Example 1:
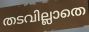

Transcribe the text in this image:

തടവില്ലാതെ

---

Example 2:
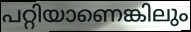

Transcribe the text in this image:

പറ്റിയാണെങ്കിലും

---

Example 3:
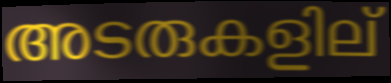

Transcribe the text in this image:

അടരുകളില്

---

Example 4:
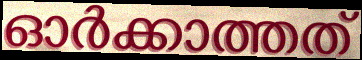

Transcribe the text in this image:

ഓർക്കാത്തത്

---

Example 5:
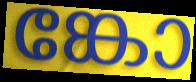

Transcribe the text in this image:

ങ്കോ